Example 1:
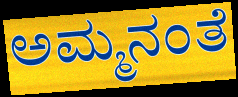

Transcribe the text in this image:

ಅಮ್ಮನಂತೆ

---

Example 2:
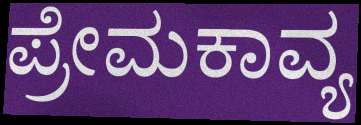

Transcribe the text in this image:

ಪ್ರೇಮಕಾವ್ಯ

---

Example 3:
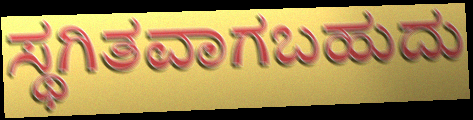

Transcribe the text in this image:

ಸ್ಥಗಿತವಾಗಬಹುದು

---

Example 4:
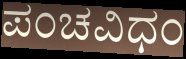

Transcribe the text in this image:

ಪಂಚವಿಧಂ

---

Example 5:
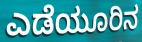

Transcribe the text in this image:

ಎಡೆಯೂರಿನ